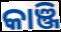
କାଞ୍ଜି